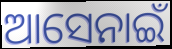
ଆସେନାଇଁ